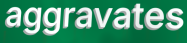
aggravates